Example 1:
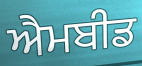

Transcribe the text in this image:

ਐਮਬੀਡ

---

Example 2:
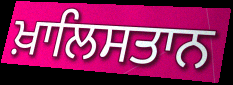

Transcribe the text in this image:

ਖ਼ਾਲਿਸਤਾਨ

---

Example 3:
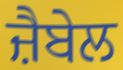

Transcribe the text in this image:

ਜ਼ੈਬੇਲ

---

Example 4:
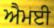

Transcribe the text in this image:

ਐਮਈ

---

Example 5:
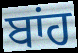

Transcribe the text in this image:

ਬਾਂਹ